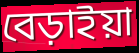
বেড়াইয়া